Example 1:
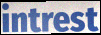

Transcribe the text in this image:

intrest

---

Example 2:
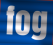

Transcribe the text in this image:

fog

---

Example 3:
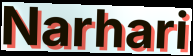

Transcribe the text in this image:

Narhari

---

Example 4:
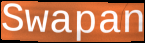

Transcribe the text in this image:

Swapan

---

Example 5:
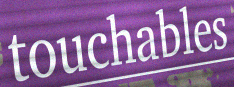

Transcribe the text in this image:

touchables